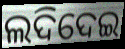
ଲଦିଦେଇ